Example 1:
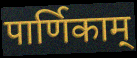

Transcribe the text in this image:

पार्णिकाम्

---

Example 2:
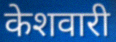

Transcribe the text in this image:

केशवारी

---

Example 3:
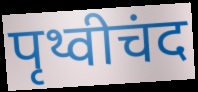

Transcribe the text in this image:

पृथ्वीचंद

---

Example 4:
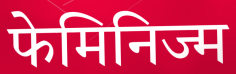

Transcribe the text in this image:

फेमिनिज्‍म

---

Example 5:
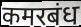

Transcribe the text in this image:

कमरबंध